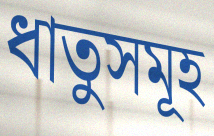
ধাতুসমূহ